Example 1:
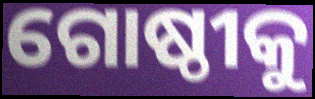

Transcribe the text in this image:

ଗୋଷ୍ଠୀକୁ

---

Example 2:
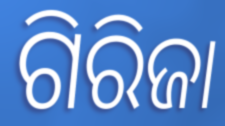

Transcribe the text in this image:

ଗିରିଜା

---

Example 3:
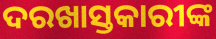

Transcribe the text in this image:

ଦରଖାସ୍ତକାରୀଙ୍କ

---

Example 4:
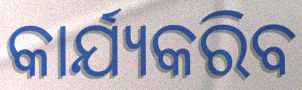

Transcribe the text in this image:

କାର୍ଯ୍ୟକରିବ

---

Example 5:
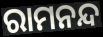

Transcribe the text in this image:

ରାମନନ୍ଦ